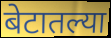
बेटातल्या